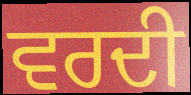
ਵਰਦੀ